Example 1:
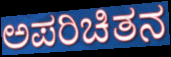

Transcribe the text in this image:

ಅಪರಿಚಿತನ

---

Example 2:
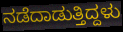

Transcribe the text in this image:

ನಡೆದಾಡುತ್ತಿದ್ದಳು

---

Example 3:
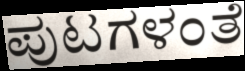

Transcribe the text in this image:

ಪುಟಗಳಂತೆ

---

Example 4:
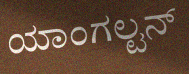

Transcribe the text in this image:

ಯಾಂಗಲ್ಟನ್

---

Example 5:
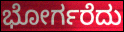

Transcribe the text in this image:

ಭೋರ್ಗರೆದು